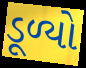
ડૂળ્યો